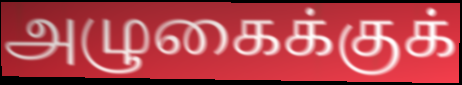
அழுகைக்குக்